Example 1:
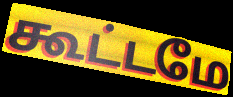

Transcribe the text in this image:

கூட்டமே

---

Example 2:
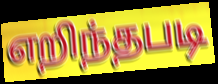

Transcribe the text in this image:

எறிந்தபடி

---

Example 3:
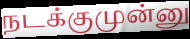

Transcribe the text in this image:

நடக்குமுன்னு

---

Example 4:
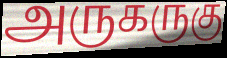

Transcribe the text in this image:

அருகருகு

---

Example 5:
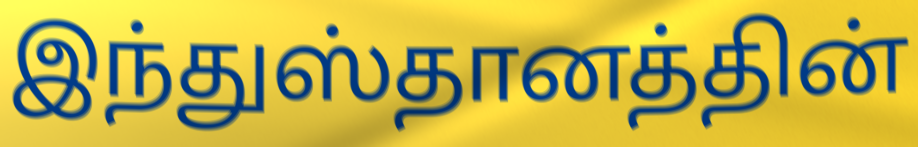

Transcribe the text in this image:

இந்துஸ்தானத்தின்